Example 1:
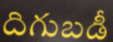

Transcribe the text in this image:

దిగుబడీ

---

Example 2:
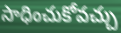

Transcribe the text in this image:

సాధించుకోవచ్చు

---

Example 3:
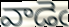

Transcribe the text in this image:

వాడెఁ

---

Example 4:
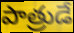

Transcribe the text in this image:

పాత్రుడే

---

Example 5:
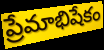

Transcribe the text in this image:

ప్రేమాభిషేకం